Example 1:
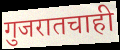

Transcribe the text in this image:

गुजरातचाही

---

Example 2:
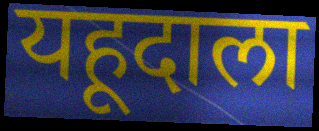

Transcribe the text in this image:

यहूदाला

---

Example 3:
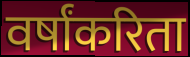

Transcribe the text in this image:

वर्षांकरिता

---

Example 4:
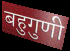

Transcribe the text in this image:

बहुगुणी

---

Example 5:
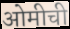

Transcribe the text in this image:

ओमीची